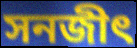
সনজীৎ